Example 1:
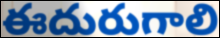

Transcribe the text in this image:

ఈదురుగాలి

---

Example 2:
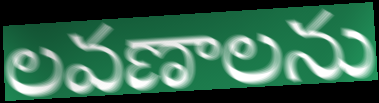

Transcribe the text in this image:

లవణాలను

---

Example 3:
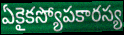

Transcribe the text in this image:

ఏకైకస్యోపకారస్య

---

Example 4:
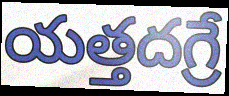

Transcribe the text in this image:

యత్తదగ్రే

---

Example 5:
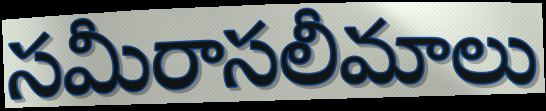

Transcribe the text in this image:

సమీరాసలీమాలు